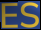
ES